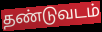
தண்டுவடம்